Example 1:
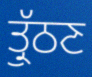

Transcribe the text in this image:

ਤ੍ਰੁੱਠਣ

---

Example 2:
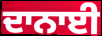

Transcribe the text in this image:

ਦਾਨਾਈ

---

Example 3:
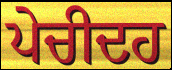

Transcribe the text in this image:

ਪੇਚੀਦਹ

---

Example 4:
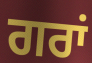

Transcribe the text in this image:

ਗਰਾਂ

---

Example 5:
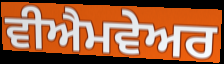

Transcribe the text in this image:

ਵੀਐਮਵੇਅਰ